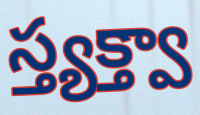
స్త్యక్త్వా